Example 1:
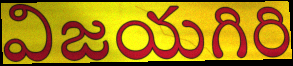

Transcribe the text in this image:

విజయగిరి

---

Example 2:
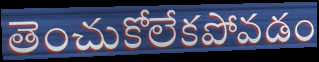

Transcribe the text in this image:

తెంచుకోలేకపోవడం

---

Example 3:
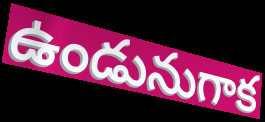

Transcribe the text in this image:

ఉండునుగాక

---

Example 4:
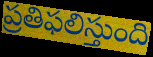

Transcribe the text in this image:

ప్రతిఫలిస్తుంది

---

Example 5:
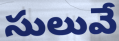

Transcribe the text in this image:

సులువే